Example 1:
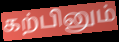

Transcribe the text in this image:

கற்பினும்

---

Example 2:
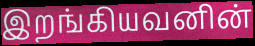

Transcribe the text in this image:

இறங்கியவனின்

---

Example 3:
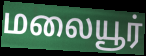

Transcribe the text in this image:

மலையூர்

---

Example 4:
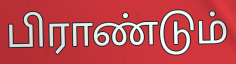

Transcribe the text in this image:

பிராண்டும்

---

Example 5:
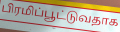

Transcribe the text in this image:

பிரமிப்பூட்டுவதாக